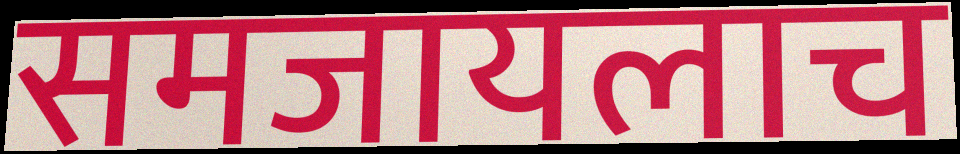
समजायलाच